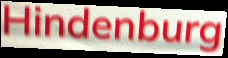
Hindenburg